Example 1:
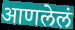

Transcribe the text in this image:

आणलेलं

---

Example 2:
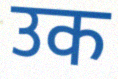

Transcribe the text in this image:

उक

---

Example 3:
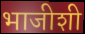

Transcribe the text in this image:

भाजीशी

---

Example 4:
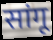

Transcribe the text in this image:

सांगू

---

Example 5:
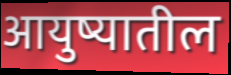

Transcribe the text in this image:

आयुष्यातील